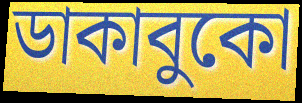
ডাকাবুকো